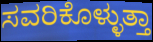
ಸವರಿಕೊಳ್ಳುತ್ತಾ